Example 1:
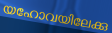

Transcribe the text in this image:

യഹോവയിലേക്കു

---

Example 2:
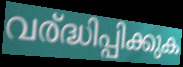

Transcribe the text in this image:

വര്ദ്ധിപ്പിക്കുക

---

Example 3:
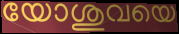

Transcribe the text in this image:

യോശുവയെ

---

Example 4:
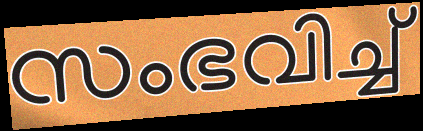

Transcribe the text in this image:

സംഭവിച്ച്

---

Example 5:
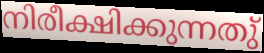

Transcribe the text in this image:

നിരീക്ഷിക്കുന്നതു്